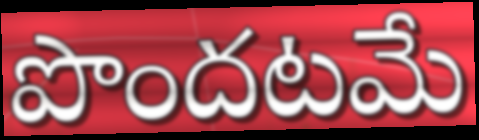
పొందటమే